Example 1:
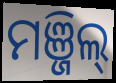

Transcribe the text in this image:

ମଞ୍ଜିଲ୍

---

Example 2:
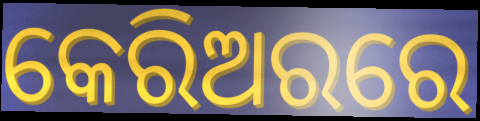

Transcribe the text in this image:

କେରିଅରରେ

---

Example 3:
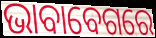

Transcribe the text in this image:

ଭାବାବେଗରେ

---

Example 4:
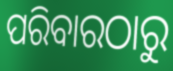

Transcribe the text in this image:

ପରିବାରଠାରୁ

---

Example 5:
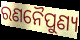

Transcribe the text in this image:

ରଣନୈପୁଣ୍ୟ